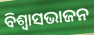
ବିଶ୍ୱାସଭାଜନ